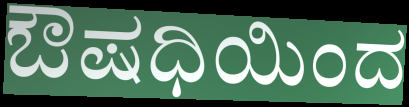
ಔಷಧಿಯಿಂದ